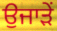
ਉਜਾੜੇਂ